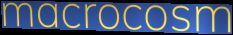
macrocosm